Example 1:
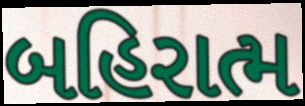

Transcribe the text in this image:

બહિરાત્મ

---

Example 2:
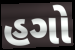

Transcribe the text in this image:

હગો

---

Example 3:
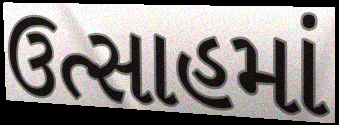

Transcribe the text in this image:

ઉત્સાહમાં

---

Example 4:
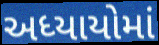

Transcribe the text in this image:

અધ્યાયોમાં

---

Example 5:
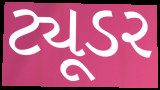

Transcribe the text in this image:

ટ્યૂડર